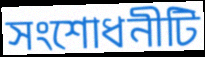
সংশোধনীটি